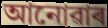
আনোৱাৰ